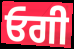
ਓਗੀ